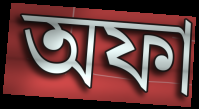
অফা